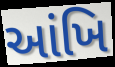
આંખિ